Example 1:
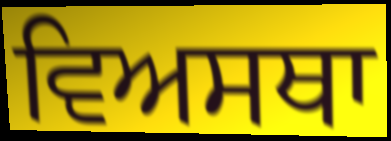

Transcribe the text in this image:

ਵਿਅਸਥਾ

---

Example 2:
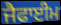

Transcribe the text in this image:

ਜੈਫਾਈਮ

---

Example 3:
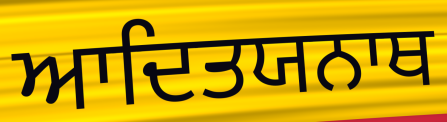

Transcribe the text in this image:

ਆਦਿਤਯਨਾਥ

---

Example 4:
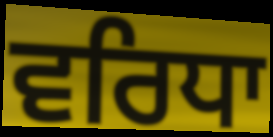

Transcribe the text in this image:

ਵਰਿਧਾ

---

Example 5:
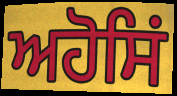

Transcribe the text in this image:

ਅਹੋਸਿਂ